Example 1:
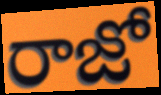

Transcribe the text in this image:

రాజో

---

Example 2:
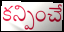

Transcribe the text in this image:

కన్పించే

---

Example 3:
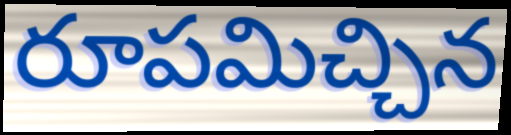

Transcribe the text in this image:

రూపమిచ్చిన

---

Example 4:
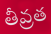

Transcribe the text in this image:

తీవ్రత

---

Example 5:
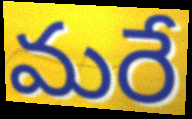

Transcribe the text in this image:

మరే